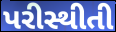
પરીસ્થીતી